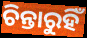
ଚିନ୍ତାରୁହିଁ